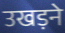
उखड़ने